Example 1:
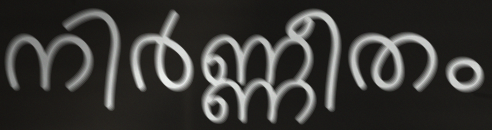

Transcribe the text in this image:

നിർണ്ണീതം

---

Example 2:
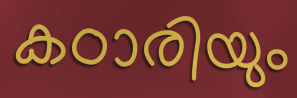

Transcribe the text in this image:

കഠാരിയും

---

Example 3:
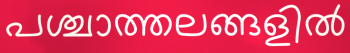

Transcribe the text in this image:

പശ്ചാത്തലങ്ങളിൽ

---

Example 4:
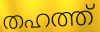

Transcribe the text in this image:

തഹത്ത്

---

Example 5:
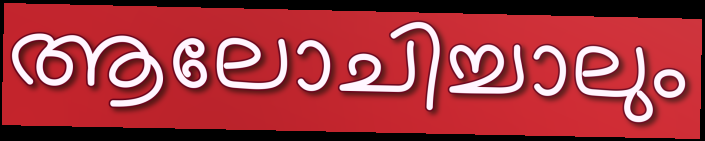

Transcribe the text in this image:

ആലോചിച്ചാലും